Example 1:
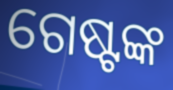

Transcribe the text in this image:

ଗେଷ୍ଟଙ୍କ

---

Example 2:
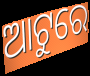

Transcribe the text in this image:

ଆଟୁରେ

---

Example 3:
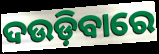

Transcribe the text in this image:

ଦଉଡ଼ିବାରେ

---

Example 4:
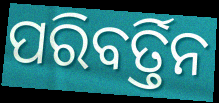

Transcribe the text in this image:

ପରିବର୍ତ୍ତିନ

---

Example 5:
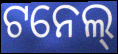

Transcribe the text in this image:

ଟନେଲ୍